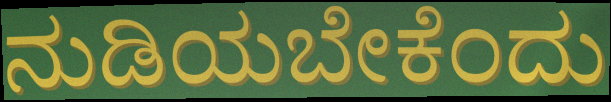
ನುಡಿಯಬೇಕೆಂದು